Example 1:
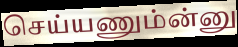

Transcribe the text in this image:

செய்யணும்ன்னு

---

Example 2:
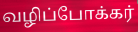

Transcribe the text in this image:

வழிப்போக்கர்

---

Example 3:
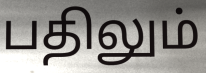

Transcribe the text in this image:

பதிலும்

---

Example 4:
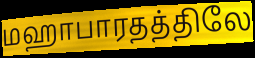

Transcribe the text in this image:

மஹாபாரதத்திலே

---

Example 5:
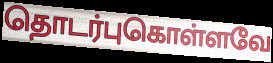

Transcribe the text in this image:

தொடர்புகொள்ளவே